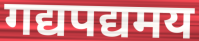
गद्यपद्यमय